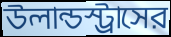
উলান্ডস্ট্রাসের